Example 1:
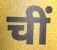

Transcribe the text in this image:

चीं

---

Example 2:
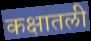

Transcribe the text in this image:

कक्षातली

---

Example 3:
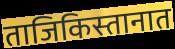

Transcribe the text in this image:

ताजिकिस्तानात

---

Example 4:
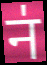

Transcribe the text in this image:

न॑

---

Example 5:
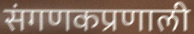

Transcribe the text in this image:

संगणकप्रणाली